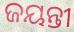
ଜୟନ୍ତୀ